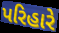
પરિહારે